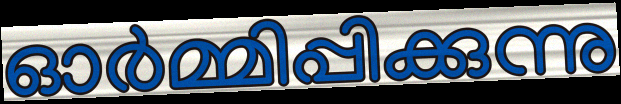
ഓർമ്മിപ്പിക്കുന്നു